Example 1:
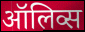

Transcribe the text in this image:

ऑलिव्स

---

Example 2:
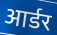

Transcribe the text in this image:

आर्डर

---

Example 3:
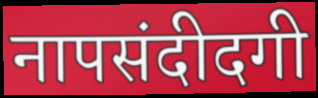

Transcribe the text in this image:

नापसंदीदगी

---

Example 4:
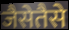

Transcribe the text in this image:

जैसेतैसे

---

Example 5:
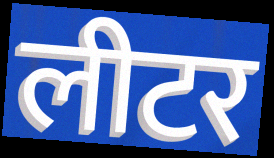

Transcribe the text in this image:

लीटर